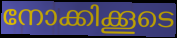
നോക്കിക്കൂടെ